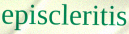
episcleritis